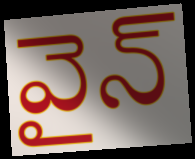
వైన్